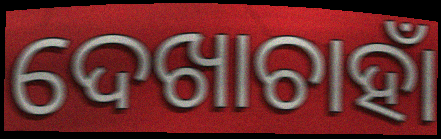
ଦେଖାଚାହାଁ